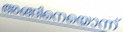
അങ്ങിനെയൊന്ന്